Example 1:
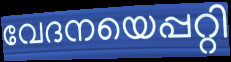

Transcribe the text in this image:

വേദനയെപ്പറ്റി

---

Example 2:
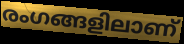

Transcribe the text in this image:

രംഗങ്ങളിലാണ്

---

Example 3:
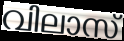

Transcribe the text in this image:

വിലാസ്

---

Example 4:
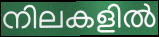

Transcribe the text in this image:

നിലകളിൽ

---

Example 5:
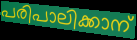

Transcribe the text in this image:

പരിപാലിക്കാന്